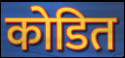
कोडित